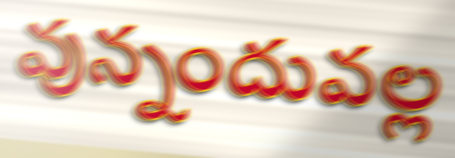
వున్నందువల్ల